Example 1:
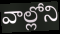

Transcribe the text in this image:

వాల్లోని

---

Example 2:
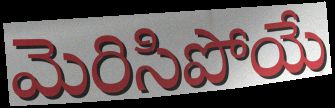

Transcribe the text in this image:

మెరిసిపోయే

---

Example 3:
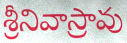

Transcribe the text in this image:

శ్రీనివాస్రావు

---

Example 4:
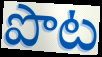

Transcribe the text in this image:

పొట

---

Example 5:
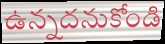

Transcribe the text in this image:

ఉన్నదనుకోండి